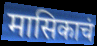
मासिकाचं